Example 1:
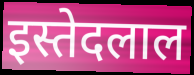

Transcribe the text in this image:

इस्तेदलाल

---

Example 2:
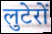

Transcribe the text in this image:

लुटेरों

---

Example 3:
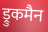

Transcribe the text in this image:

ड्रुकमैन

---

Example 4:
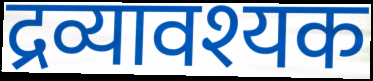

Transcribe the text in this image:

द्रव्यावश्यक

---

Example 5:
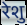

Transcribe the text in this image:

रेशु